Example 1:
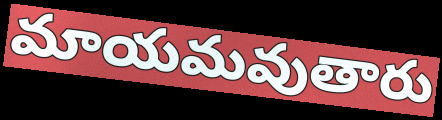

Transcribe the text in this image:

మాయమవుతారు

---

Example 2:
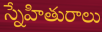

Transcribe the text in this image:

స్నేహితురాలు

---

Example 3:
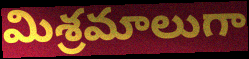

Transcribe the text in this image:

మిశ్రమాలుగా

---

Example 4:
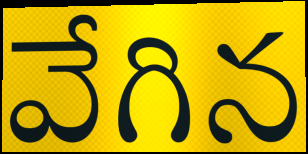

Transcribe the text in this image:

వేగిన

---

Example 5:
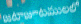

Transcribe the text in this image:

జటాజూటములలో